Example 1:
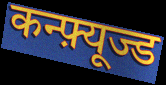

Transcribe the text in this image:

कन्फ़्यूज्ड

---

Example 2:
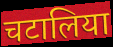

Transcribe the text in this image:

चटालिया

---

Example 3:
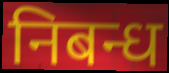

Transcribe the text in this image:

निबन्‍ध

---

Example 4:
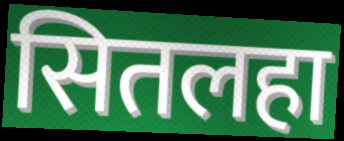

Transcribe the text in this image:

सितलहा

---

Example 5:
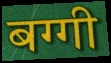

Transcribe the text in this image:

बग्‍गी